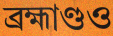
ব্রহ্মাণ্ডও